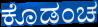
ಕೊಡಂಚ